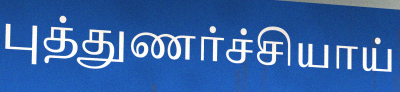
புத்துணர்ச்சியாய்